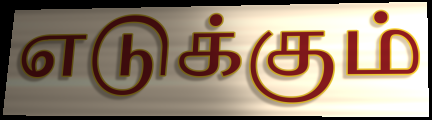
எடுக்கும்